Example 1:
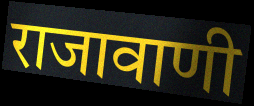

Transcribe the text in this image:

राजावाणी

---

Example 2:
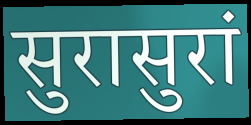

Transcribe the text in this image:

सुरासुरां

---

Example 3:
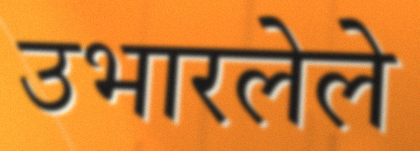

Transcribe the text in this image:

उभारलेले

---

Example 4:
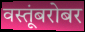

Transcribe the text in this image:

वस्तूंबरोबर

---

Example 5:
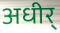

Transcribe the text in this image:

अधीर्